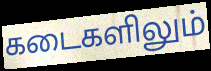
கடைகளிலும்